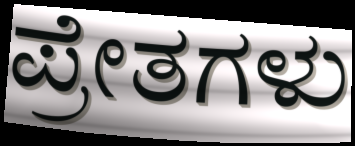
ಪ್ರೇತಗಳು